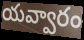
యవ్వారం